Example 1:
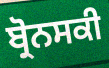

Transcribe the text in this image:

ਬ੍ਰੋਨਸਕੀ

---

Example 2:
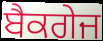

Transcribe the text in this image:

ਬੈਕਗੇਜ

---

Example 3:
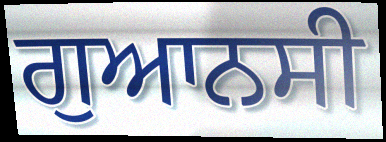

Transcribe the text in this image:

ਗੁਆਨਸੀ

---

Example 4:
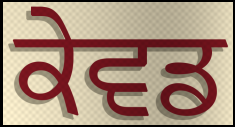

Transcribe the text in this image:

ਕੇਵਡ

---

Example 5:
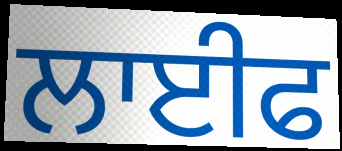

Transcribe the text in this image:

ਲਾਈਫ